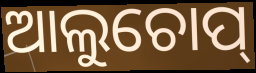
ଆଲୁଚୋପ୍